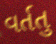
વર્તતુ